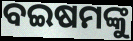
ବଇଷମଙ୍କୁ